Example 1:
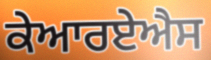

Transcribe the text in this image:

ਕੇਆਰਏਐਸ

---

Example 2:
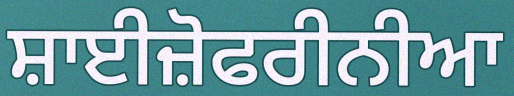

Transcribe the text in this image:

ਸ਼ਾਈਜ਼ੋਫਰੀਨੀਆ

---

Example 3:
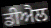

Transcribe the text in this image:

ਡੀਐਲ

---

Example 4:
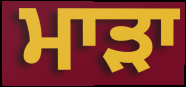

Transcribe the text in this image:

ਮਾਡ਼ਾ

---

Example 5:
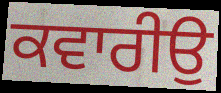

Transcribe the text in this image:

ਕਵਾਰੀਉ